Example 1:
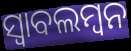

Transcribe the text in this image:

ସ୍ୱାବଲମ୍ବନ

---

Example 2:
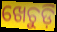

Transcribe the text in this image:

ଖେଚୁଡ଼ି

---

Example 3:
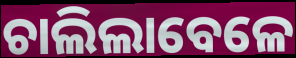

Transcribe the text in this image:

ଚାଲିଲାବେଳେ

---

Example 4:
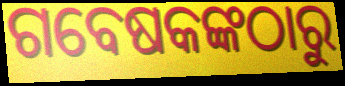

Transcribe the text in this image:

ଗବେଷକଙ୍କଠାରୁ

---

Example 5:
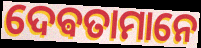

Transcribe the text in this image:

ଦେଵତାମାନେ